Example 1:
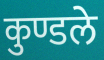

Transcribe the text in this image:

कुण्डले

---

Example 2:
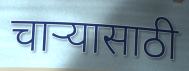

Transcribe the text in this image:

चार्‍यासाठी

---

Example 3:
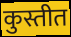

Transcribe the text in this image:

कुस्तीत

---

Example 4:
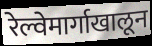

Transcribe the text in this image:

रेल्वेमार्गाखालून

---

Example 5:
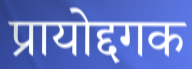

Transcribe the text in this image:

प्रायोद्दगक